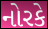
નોરકે